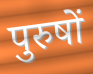
पुरुषों